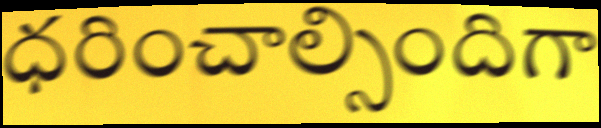
ధరించాల్సిందిగా